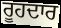
ਰੂਹਦਾਰ